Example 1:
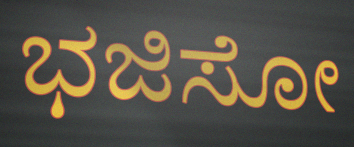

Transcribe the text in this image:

ಭಜಿಸೋ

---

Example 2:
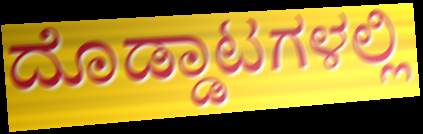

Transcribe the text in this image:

ದೊಡ್ಡಾಟಗಳಲ್ಲಿ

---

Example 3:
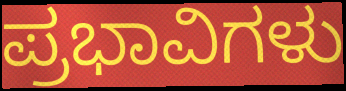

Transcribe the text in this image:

ಪ್ರಭಾವಿಗಳು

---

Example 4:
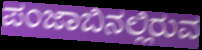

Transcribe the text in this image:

ಪಂಜಾಬಿನಲ್ಲಿರುವ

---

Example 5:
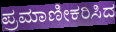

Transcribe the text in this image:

ಪ್ರಮಾಣೀಕರಿಸಿದ